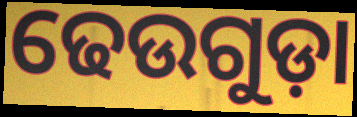
ଢେଉଗୁଡ଼ା